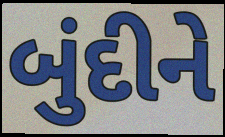
બુંદીને